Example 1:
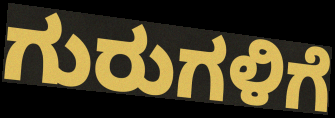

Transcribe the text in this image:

ಗುರುಗಳಿಗೆ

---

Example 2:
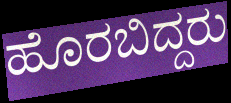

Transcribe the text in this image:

ಹೊರಬಿದ್ದರು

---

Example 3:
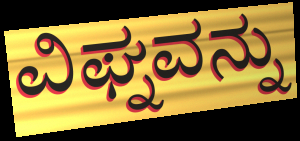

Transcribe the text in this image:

ವಿಘ್ನವನ್ನು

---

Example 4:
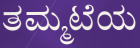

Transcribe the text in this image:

ತಮ್ಮಟೆಯ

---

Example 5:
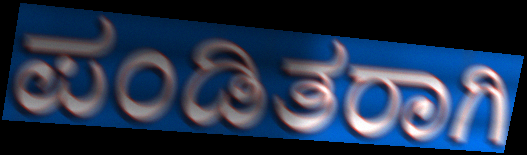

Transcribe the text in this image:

ಪಂಡಿತರಾಗಿ